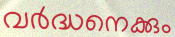
വർദ്ധനെക്കും